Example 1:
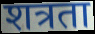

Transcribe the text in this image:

शत्रता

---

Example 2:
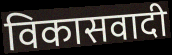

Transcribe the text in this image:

विकासवादी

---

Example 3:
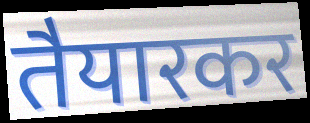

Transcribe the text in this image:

तैयारकर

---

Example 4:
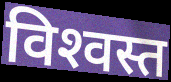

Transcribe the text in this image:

विश्‍वस्त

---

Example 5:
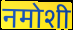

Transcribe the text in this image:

नमोशी